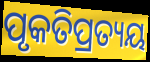
ପୃକତିପ୍ରତ୍ୟୟ